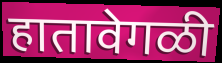
हातावेगळी